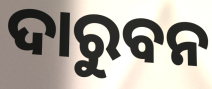
ଦାରୁବନ